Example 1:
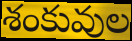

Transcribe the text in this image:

శంకువుల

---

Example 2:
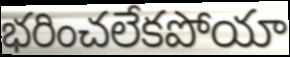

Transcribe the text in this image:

భరించలేకపోయా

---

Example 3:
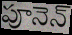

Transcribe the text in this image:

పూనెన్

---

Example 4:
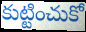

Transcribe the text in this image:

కుట్టించుకో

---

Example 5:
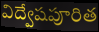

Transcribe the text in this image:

విద్వేషపూరిత